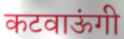
कटवाऊंगी